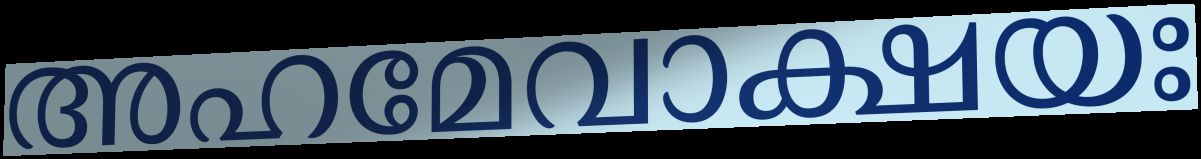
അഹമേവാക്ഷയഃ